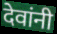
देवांनी